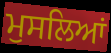
ਮੁਸਲਿਆਂ